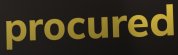
procured